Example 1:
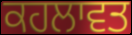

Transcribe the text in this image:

ਕਹਲਾਵਤ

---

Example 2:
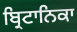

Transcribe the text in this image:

ਬ੍ਰਿਟਾਨਿਕਾ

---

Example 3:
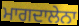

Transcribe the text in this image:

ਮਾਗਦਾਲੇਨਾ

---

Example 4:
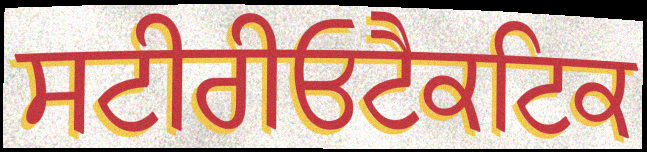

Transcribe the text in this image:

ਸਟੀਰੀਓਟੈਕਟਿਕ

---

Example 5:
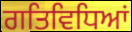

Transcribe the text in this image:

ਗਤਿਵਿਧਿਆਂ